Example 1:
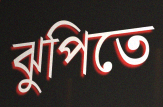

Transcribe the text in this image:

ঝুপিতে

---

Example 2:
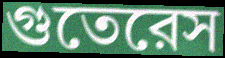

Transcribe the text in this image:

গুতেরেস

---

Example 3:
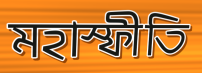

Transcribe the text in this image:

মহাস্ফীতি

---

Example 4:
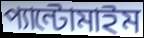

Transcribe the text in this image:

প্যান্টোমাইম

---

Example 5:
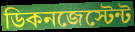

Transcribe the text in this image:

ডিকনজেস্টেন্ট